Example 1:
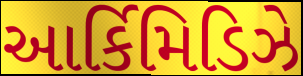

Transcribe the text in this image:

આર્કિમિડિઝે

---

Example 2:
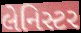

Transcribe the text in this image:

લેનિસ્ટર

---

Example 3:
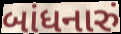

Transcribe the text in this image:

બાંધનારું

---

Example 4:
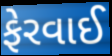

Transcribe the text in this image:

ફેરવાઈ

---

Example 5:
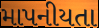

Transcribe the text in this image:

માપનીયતા